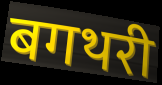
बगथरी